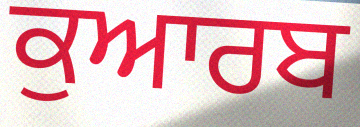
ਕੁਆਰਬ